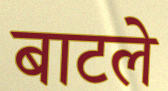
बाटले